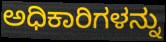
ಅಧಿಕಾರಿಗಳನ್ನು